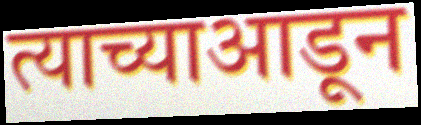
त्याच्याआडून